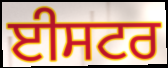
ਈਸਟਰ